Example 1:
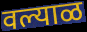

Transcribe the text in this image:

वल्याळ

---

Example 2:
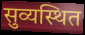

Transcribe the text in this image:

सुव्यस्थित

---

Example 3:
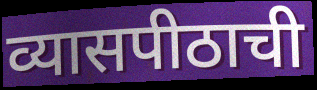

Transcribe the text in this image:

व्यासपीठाची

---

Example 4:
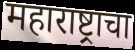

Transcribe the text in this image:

महाराष्ट्राचा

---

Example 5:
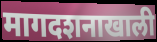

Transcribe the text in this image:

मागदशनाखाली